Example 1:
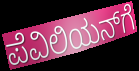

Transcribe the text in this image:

ಪೆವಿಲಿಯನ್‌ಗೆ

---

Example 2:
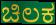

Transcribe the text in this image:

ಚಿಲಕ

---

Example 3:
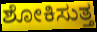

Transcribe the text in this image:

ಶೋಕಿಸುತ್ತ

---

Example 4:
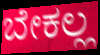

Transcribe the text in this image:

ಬೇಕಲ್ಲ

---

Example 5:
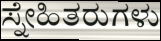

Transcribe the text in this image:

ಸ್ನೇಹಿತರುಗಳು